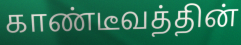
காண்டீவத்தின்